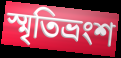
স্মৃতিভ্রংশ